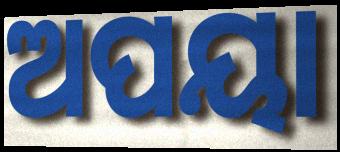
ଅପୟା